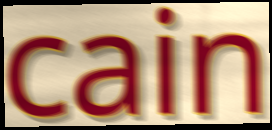
cain